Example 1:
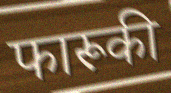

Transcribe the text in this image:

फारूकी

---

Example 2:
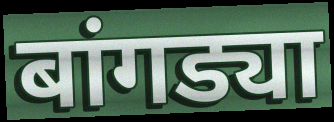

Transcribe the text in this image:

बांगड्या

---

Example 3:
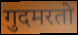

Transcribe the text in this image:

गुदमरतो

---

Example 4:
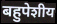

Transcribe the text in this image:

बहुपेशीय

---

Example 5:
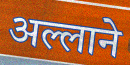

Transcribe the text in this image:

अल्लाने